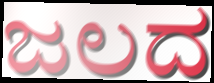
ಜಲದ